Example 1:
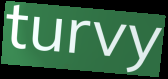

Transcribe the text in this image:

turvy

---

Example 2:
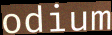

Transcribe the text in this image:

odium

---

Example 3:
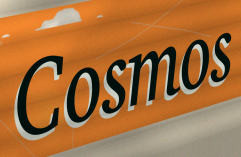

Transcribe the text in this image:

Cosmos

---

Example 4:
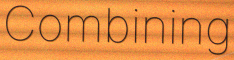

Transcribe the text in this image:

Combining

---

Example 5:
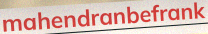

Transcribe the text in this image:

mahendranbefrank